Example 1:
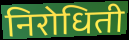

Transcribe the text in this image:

निरोधिती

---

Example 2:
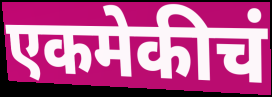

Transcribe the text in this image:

एकमेकीचं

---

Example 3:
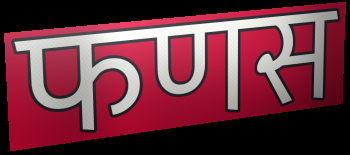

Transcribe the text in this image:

फणस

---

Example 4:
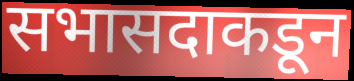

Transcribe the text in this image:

सभासदाकडून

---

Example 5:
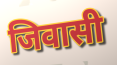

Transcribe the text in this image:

जिवासी